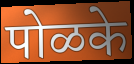
पोळके